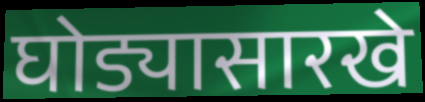
घोड्यासारखे